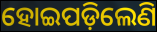
ହୋଇପଡ଼ିଲେଣି